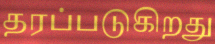
தரப்படுகிறது